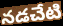
నడచేటి